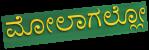
ಮೋಲಾಗಲ್ಲೋ